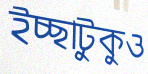
ইচ্ছাটুকুও